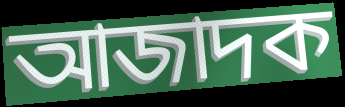
আজাদক